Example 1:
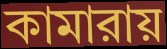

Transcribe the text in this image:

কামারায়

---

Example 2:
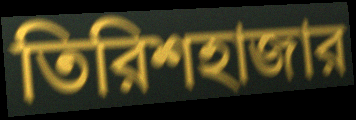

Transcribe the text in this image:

তিরিশহাজার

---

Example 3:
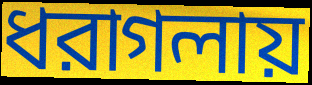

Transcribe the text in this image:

ধরাগলায়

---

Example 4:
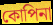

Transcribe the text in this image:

কোপিনা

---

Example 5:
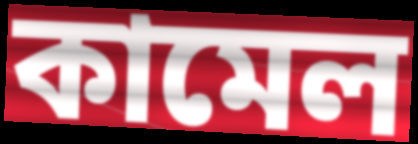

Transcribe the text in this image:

কামেল